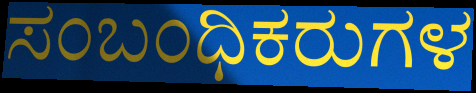
ಸಂಬಂಧಿಕರುಗಳ